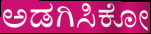
ಅಡಗಿಸಿಕೋ